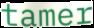
tamer